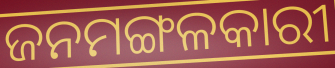
ଜନମଙ୍ଗଳକାରୀ